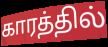
காரத்தில்